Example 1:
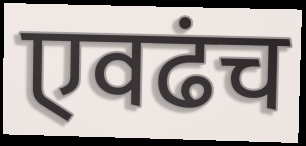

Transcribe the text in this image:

एवढंच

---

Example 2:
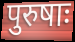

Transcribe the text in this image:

पुरुषाः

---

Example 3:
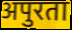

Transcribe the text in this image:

अपुरता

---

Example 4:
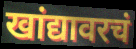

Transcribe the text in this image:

खांद्यावरचं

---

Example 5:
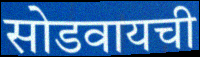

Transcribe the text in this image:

सोडवायची